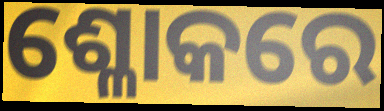
ଶ୍ଳୋକରେ